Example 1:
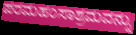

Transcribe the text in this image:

ಪರಮಹಂಸಾಶ್ರಮವನ್ನು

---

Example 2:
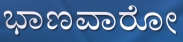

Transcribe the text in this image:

ಭಾಣವಾರೋ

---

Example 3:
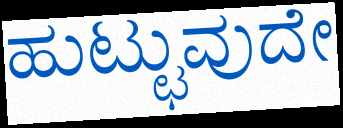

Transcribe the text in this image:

ಹುಟ್ಟುವುದೇ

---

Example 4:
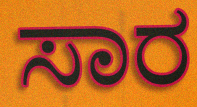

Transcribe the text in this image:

ಸಾರ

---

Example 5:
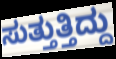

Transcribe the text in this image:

ಸುತ್ತುತ್ತಿದ್ದು